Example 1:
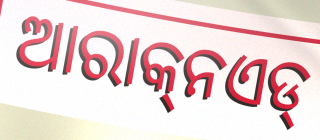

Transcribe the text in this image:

ଆରାକ୍‌ନଏଡ୍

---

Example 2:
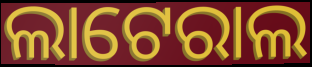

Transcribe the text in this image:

ଲାଟେରାଲ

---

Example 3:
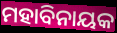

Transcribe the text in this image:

ମହାବିନାୟକ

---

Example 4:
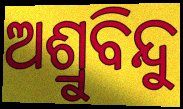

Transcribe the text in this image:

ଅଶ୍ରୁବିନ୍ଦୁ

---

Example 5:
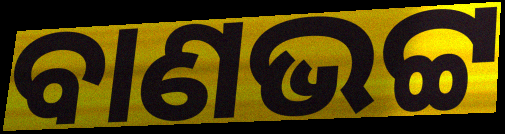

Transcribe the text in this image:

ବାଣଭଟ୍ଟ